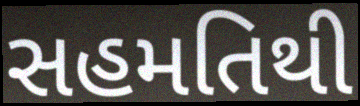
સહમતિથી